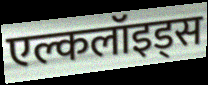
एल्कलॉइड्स